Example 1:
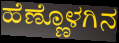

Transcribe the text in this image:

ಹೆಣ್ಣೊಳಗಿನ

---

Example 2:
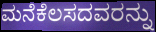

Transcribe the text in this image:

ಮನೆಕೆಲಸದವರನ್ನು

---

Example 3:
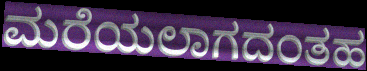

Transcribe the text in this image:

ಮರೆಯಲಾಗದಂತಹ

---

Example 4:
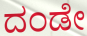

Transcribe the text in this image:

ದಂಡೇ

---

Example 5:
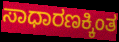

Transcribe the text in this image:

ಸಾಧಾರಣಕ್ಕಿಂತ